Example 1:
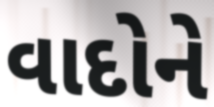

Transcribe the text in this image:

વાદોને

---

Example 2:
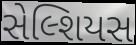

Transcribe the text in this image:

સેલ્શિયસ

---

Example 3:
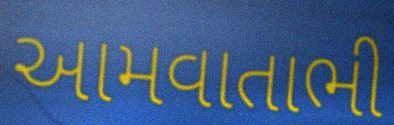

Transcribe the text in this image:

આમવાતાભી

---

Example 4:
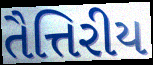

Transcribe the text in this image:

તૈત્તિરીય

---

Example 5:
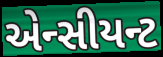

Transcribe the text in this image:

એન્સીયન્ટ